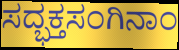
ಸದ್ಭಕ್ತಸಂಗಿನಾಂ